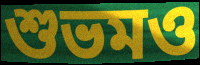
শুভমও